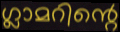
ഗ്ലാമറിന്റെ